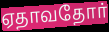
ஏதாவதோர்